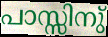
പാസ്സിനു്